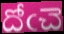
దోఁచె